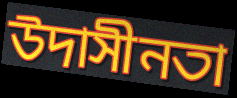
উদাসীনতা